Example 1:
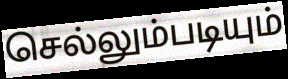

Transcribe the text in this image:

செல்லும்படியும்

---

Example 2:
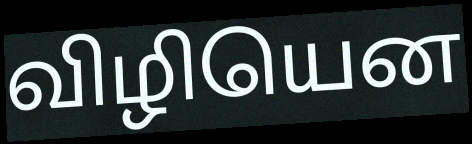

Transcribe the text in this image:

விழியென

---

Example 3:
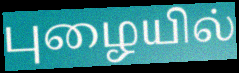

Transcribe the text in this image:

புழையில்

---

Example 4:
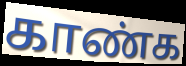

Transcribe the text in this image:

காண்க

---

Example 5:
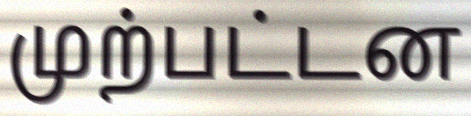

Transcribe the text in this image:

முற்பட்டன